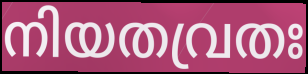
നിയതവ്രതഃ